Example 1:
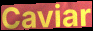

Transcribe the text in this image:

Caviar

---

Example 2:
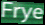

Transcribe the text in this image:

Frye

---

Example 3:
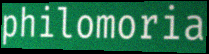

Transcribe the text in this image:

philomoria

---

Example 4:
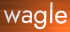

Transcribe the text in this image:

wagle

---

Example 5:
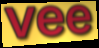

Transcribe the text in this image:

vee